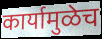
कार्यामुळेच